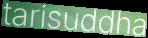
tarisuddha